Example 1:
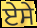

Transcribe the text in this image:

ਏਸੇ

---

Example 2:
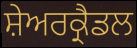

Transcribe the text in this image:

ਸ਼ੇਅਰਕ੍ਰੈਡਲ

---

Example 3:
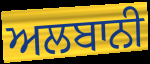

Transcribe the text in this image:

ਅਲਬਾਨੀ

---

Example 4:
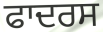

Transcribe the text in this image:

ਫਾਦਰਸ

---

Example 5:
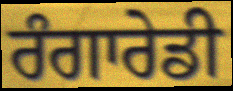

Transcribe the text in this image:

ਰੰਗਾਰੇਡੀ